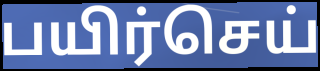
பயிர்செய்